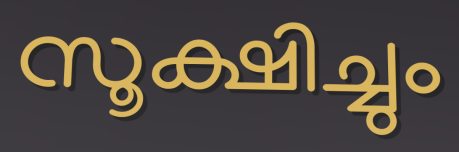
സൂക്ഷിച്ചും